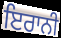
ਇਰਾਨੀ